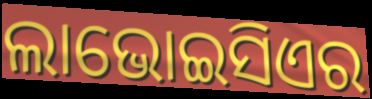
ଲାଭୋଇସିଏର